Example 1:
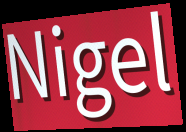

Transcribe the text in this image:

Nigel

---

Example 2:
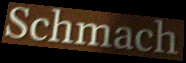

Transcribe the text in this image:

Schmach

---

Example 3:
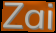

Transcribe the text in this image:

Zai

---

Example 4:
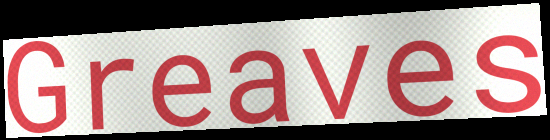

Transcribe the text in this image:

Greaves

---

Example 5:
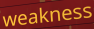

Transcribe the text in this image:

weakness